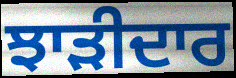
ਝਾੜੀਦਾਰ